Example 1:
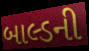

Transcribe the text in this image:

બાલ્ડની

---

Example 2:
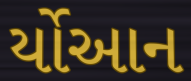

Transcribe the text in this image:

ર્યોઆન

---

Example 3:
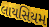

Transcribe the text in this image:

લાયસિયમ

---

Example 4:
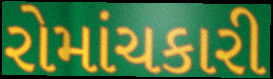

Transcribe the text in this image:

રોમાંચકારી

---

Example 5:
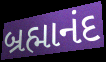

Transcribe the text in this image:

બ્રહ્માનંદ